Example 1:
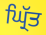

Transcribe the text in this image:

ਘ੍ਰਿੱਤ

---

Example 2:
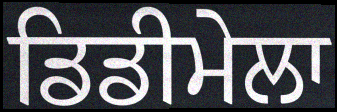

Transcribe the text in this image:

ਡਿਡੀਮੇਲਾ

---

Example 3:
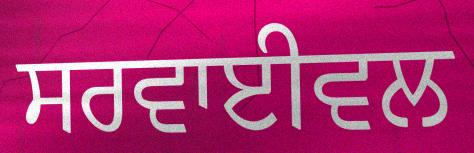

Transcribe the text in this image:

ਸਰਵਾਈਵਲ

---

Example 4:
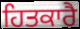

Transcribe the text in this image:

ਹਿਤਕਾਰੈ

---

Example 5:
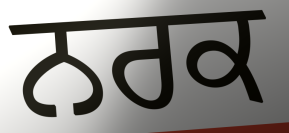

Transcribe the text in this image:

ਨਰਕ